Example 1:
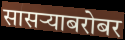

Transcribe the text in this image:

सासऱ्याबरोबर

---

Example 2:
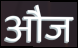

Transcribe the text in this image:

औज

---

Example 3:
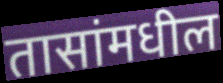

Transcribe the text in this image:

तासांमधील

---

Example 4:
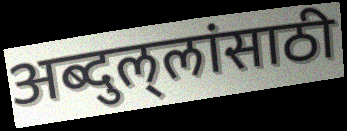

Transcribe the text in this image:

अब्दुल्लांसाठी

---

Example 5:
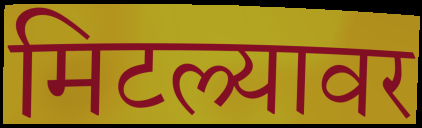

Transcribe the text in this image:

मिटल्यावर